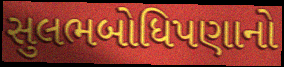
સુલભબોધિપણાનો